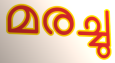
മരച്ചു